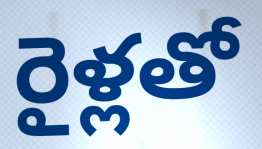
రైళ్లతో